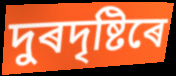
দুৰদৃষ্টিৰে